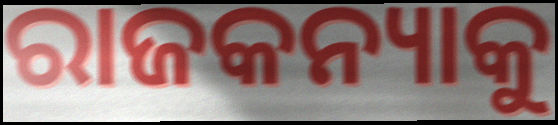
ରାଜକନ୍ୟାକୁ